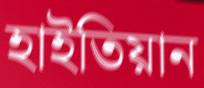
হাইতিয়ান